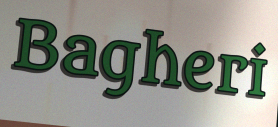
Bagheri